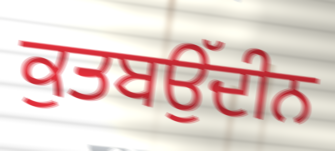
ਕੁਤਬਉੱਦੀਨ